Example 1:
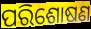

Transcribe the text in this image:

ପରିଶୋଷଣ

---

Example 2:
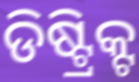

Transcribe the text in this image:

ଡିଷ୍ଟ୍ରିକ୍ଟ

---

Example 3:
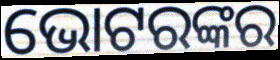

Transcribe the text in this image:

ଭୋଟରଙ୍କର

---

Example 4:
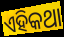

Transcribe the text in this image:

ଏହିକଥା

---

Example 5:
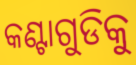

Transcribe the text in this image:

କଣ୍ଟାଗୁଡିକୁ